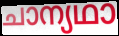
ചാന്യഥാ